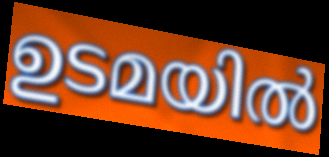
ഉടമയിൽ